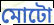
মোটো